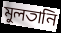
মুলতানি